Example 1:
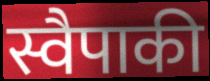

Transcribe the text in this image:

स्वैपाकी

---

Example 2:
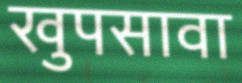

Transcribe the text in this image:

खुपसावा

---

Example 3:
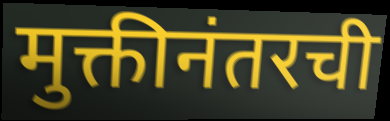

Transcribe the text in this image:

मुक्तीनंतरची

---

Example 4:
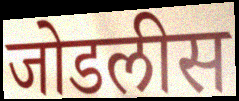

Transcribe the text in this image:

जोडलीस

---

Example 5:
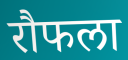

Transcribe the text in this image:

रौफला